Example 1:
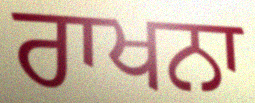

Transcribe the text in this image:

ਰਾਖਨਾ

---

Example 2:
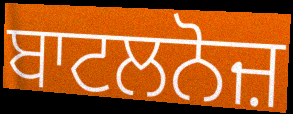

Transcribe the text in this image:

ਬਾਟਲਨੋਜ਼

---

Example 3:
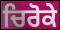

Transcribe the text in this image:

ਚਿਰੋਕੇ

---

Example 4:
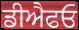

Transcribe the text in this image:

ਡੀਐਫਓ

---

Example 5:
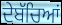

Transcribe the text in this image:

ਦੇਬੱਚਿਆਂ